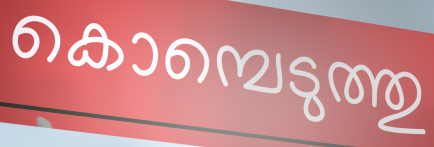
കൊമ്പെടുത്തു